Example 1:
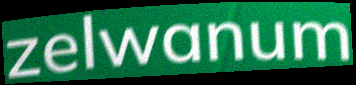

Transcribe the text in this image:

zelwanum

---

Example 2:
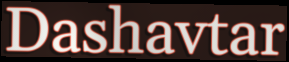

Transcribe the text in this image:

Dashavtar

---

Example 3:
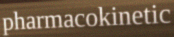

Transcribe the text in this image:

pharmacokinetic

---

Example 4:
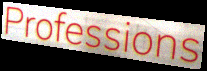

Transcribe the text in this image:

Professions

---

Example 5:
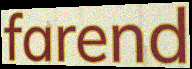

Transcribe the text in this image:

farend